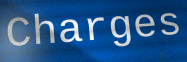
Charges